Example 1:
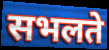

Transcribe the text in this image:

सभलते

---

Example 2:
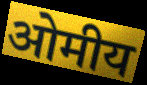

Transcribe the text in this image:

ओमीय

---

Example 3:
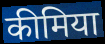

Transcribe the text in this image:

कीमिया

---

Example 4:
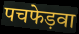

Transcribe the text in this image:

पचफेड़वा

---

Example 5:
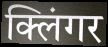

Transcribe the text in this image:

क्लिंगर